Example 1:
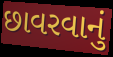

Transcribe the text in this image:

છાવરવાનું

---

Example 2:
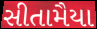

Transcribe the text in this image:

સીતામૈયા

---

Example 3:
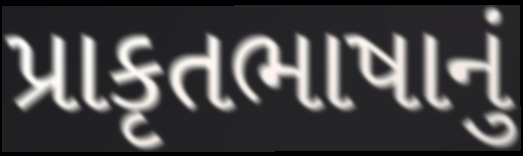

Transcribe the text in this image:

પ્રાકૃતભાષાનું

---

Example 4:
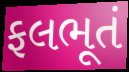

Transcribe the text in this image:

ફલભૂતં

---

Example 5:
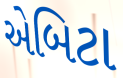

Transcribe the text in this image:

એબિટા